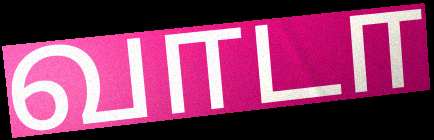
வாடா